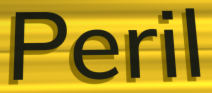
Peril